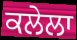
ਕਲੇਲਾ